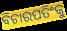
ବିଚାରପତିଂକୁ